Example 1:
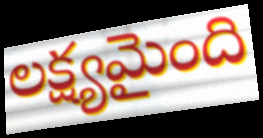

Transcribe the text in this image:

లక్ష్యమైంది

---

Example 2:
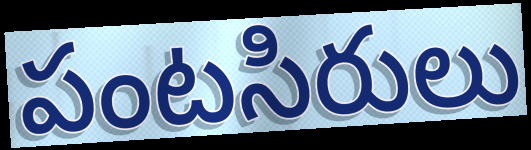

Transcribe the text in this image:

పంటసిరులు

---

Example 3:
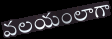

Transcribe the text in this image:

వలయంలాగా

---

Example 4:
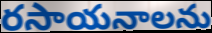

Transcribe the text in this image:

రసాయనాలను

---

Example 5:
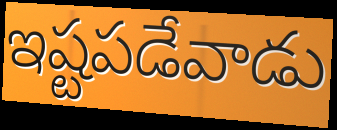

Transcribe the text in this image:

ఇష్టపడేవాడు